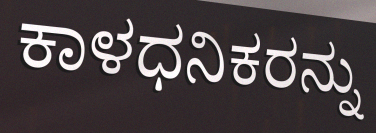
ಕಾಳಧನಿಕರನ್ನು